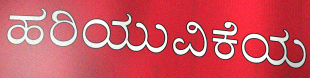
ಹರಿಯುವಿಕೆಯ